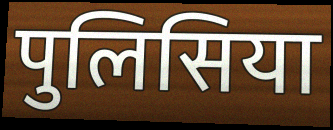
पुलिसिया